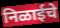
निळाईचे